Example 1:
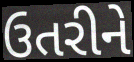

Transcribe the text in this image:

ઉતરીને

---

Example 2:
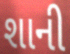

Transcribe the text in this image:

શાની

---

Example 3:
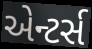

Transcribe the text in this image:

એન્ટર્સ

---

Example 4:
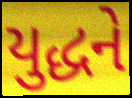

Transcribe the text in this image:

યુદ્ધને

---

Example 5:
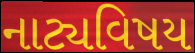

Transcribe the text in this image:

નાટ્યવિષય